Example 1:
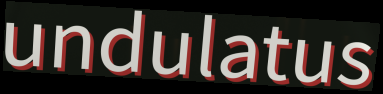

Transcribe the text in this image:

undulatus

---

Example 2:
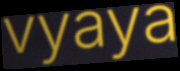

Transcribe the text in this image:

vyaya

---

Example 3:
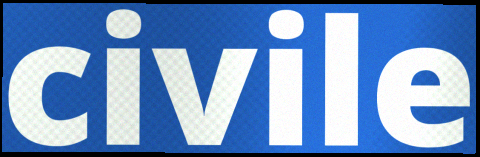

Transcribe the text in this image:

civile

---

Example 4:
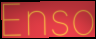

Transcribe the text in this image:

Enso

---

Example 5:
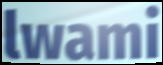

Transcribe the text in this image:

lwami